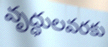
వృద్ధులవరకు